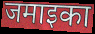
जमाइका